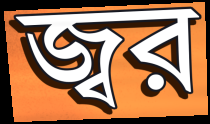
জ্বর